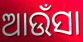
ଆଉଁସା